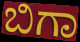
ಬಿಗಾ